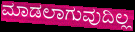
ಮಾಡಲಾಗುವುದಿಲ್ಲ